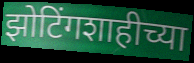
झोटिंगशाहीच्या